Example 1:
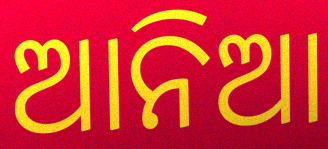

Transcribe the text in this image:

ଆନିଆ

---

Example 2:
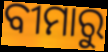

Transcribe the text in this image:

ବୀମାରୁ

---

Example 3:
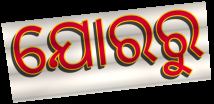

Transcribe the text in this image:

ଯୋରରୁ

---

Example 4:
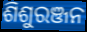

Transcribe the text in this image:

ଶିଶୁରଞ୍ଜନ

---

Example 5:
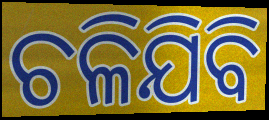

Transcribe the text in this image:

ଚଳିଯିବି